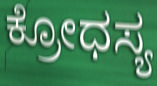
ಕ್ರೋಧಸ್ಯ